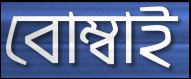
বোম্বাই